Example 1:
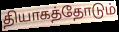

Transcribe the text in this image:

தியாகத்தோடும்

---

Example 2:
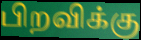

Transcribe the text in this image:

பிறவிக்கு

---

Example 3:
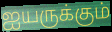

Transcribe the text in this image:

ஐயருக்கும்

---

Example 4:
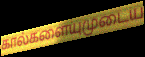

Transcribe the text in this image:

கால்களையுமுடைய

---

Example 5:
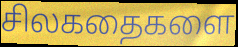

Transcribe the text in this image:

சிலகதைகளை